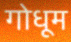
गोधूम